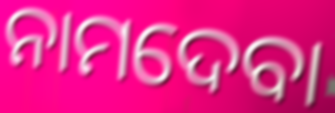
ନାମଦେବା